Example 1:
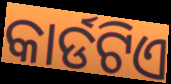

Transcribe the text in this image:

କାର୍ଡଟିଏ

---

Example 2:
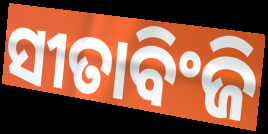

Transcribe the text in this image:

ସୀତାବିଂଜି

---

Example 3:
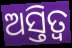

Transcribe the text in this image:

ଅସ୍ତିତ୍ଵ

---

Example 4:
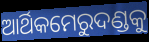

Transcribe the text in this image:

ଆର୍ଥିକମେରୁଦଣ୍ଡକୁ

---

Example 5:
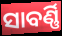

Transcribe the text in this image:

ସାବର୍ଣ୍ଣି